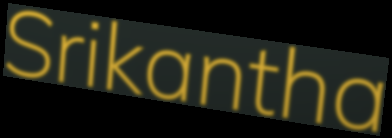
Srikantha